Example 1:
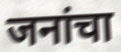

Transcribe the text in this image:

जनांचा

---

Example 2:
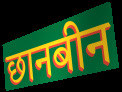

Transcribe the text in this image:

छानबीन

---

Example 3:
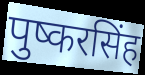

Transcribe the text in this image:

पुष्करसिंह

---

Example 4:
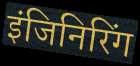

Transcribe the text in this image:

इंजिनिरिंग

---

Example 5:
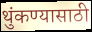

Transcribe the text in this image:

थुंकण्यासाठी